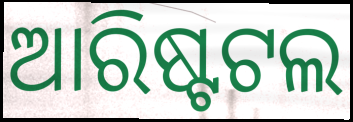
ଆରିଷ୍ଟଟଲ